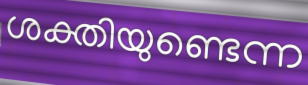
ശക്തിയുണ്ടെന്ന